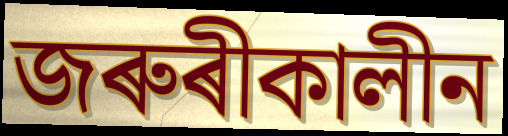
জৰুৰীকালীন